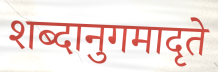
शब्दानुगमादृते